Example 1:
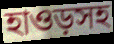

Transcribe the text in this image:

হাওড়সহ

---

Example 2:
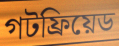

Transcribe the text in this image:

গটফ্রিয়েড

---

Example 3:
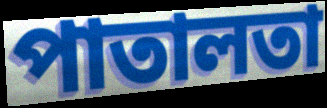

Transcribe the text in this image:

পাতালতা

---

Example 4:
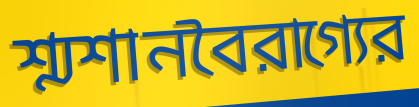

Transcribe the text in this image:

শ্মশানবৈরাগ্যের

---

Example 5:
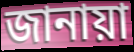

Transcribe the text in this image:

জানায়া